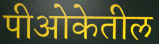
पीओकेतील